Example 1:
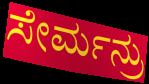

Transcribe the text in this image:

ಸೇರ್ಮನ್ರು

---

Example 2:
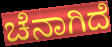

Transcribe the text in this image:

ಚೆನಾಗಿದೆ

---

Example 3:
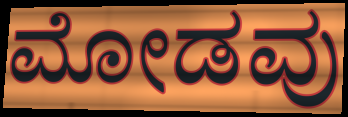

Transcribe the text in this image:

ಮೋಡವು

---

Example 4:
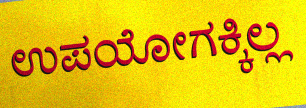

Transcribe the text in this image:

ಉಪಯೋಗಕ್ಕಿಲ್ಲ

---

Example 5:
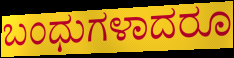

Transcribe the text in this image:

ಬಂಧುಗಳಾದರೂ